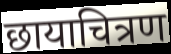
छायाचित्रण